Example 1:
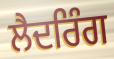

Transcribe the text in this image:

ਲੈਦਰਿੰਗ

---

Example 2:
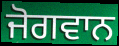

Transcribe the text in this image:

ਜੋਗਵਾਨ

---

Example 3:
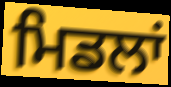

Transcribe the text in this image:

ਮਿਡਲਾਂ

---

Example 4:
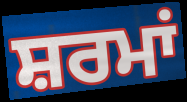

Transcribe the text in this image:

ਸ਼ਰਮਾਂ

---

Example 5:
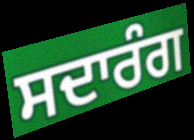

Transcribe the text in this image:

ਸਦਾਰੰਗ